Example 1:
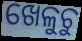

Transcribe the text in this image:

ଖେଳୁଚୁ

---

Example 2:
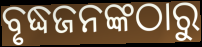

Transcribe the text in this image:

ବୃଦ୍ଧଜନଙ୍କଠାରୁ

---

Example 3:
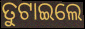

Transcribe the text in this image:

ତୁଟାଇଲେ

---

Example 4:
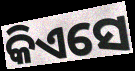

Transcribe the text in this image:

କିଏସେ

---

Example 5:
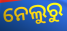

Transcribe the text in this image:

ନେଲୁରୁ